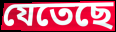
যেতেছে